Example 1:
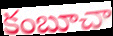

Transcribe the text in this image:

కంబూచా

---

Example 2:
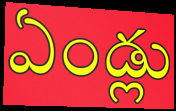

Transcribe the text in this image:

ఏండ్లు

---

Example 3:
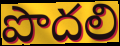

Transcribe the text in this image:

పొదలి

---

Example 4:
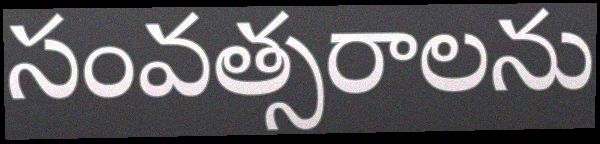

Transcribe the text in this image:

సంవత్సరాలను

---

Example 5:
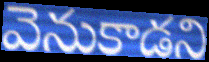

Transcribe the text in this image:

వెనుకాడని